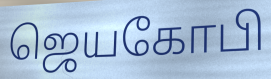
ஜெயகோபி